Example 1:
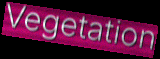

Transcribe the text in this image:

Vegetation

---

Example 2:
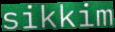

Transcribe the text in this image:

sikkim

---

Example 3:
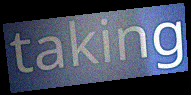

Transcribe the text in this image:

taking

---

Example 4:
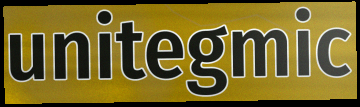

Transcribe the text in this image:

unitegmic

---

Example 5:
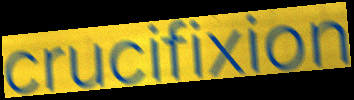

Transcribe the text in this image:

crucifixion